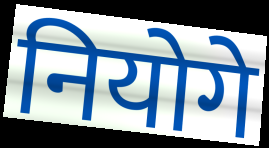
नियोगे